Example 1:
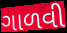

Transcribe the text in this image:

ગાળવી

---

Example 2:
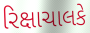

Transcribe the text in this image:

રિક્ષાચાલકે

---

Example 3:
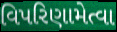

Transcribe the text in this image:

વિપરિણામેત્વા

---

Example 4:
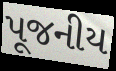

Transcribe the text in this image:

પૂજનીય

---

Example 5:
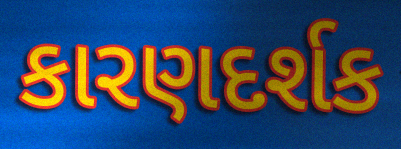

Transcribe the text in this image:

કારણદર્શક